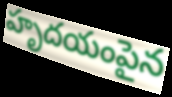
హృదయంపైన